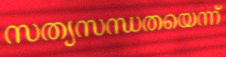
സത്യസന്ധതയെന്ന്